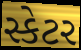
સ્કેટર